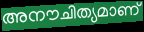
അനൗചിത്യമാണ്